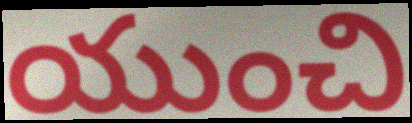
యుంచి